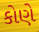
કોણે